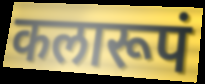
कलारूपं